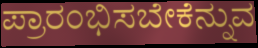
ಪ್ರಾರಂಭಿಸಬೇಕೆನ್ನುವ